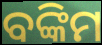
ବଙ୍କିମ